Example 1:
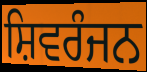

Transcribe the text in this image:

ਸ਼ਿਵਰੰਜਨ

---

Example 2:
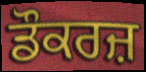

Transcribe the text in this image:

ਡੌਕਰਜ਼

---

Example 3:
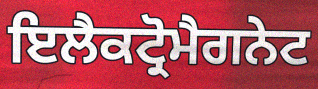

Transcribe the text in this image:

ਇਲੈਕਟ੍ਰੋਮੈਗਨੇਟ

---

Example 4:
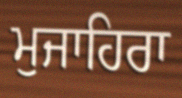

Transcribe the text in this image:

ਮੁਜਾਹਿਰਾ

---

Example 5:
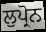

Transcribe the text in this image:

ਲੁਪ੍ਰੋਨ